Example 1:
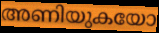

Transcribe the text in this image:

അണിയുകയോ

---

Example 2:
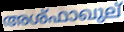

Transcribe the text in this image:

അശ്ഫാഖുല്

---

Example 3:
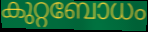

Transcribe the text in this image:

കുറ്റബോധം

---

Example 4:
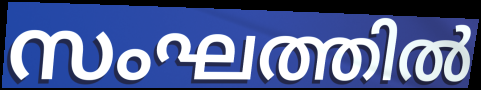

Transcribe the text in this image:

സംഘത്തിൽ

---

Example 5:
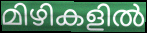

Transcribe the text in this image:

മിഴികളിൽ